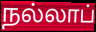
நல்லாப்